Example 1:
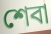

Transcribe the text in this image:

শেবা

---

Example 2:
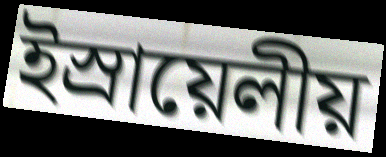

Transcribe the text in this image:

ইস্রায়েলীয়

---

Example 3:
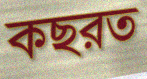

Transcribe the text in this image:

কছরত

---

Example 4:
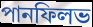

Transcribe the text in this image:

পানফিলভ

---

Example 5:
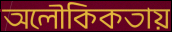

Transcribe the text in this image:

অলৌকিকতায়